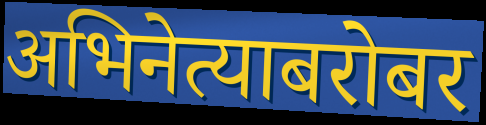
अभिनेत्याबरोबर